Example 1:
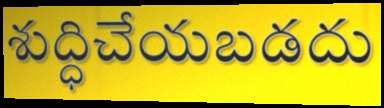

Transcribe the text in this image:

శుద్ధిచేయబడదు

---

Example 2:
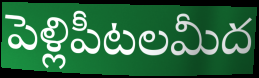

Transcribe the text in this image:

పెళ్లిపీటలమీద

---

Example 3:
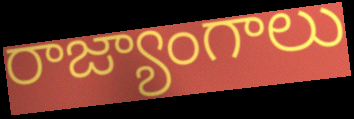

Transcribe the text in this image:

రాజ్యాంగాలు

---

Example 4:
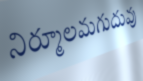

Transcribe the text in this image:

నిర్మూలమగుదువు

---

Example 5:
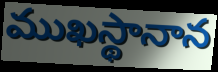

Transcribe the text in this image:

ముఖస్థానాన